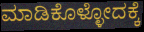
ಮಾಡಿಕೊಳ್ಳೋದಕ್ಕೆ